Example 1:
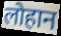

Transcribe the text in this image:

लोहान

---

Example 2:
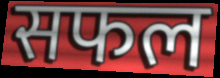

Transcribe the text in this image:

सफल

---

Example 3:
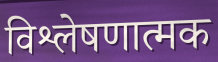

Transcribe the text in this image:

विश्लेषणात्मक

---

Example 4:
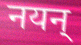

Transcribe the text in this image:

नयन्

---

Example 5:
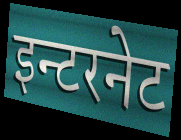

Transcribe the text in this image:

इन्टरनेट